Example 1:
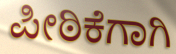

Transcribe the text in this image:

ಪೀಠಿಕೆಗಾಗಿ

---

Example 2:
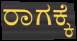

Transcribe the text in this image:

ರಾಗಕ್ಕೆ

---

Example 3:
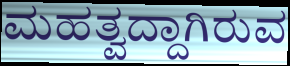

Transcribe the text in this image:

ಮಹತ್ವದ್ದಾಗಿರುವ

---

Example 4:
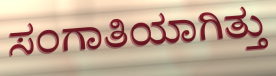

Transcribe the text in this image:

ಸಂಗಾತಿಯಾಗಿತ್ತು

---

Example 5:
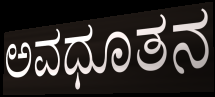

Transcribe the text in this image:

ಅವಧೂತನ